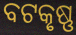
ବଟକୃଷ୍ଣ